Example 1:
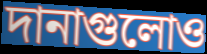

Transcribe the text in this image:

দানাগুলোও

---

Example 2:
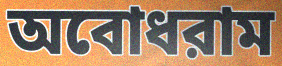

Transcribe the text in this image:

অবোধরাম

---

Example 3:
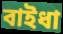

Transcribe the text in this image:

বাইধা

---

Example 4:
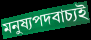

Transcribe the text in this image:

মনুষ্যপদবাচ্যই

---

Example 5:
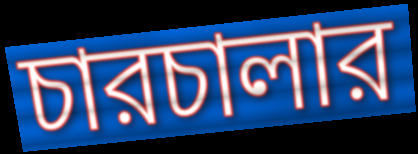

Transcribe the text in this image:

চারচালার